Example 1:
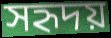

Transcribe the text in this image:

সহৃদয়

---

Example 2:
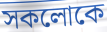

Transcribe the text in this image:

সকলোকে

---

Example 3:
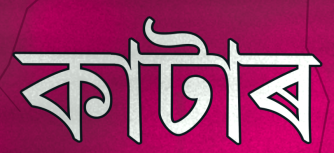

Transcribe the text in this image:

কাটাৰ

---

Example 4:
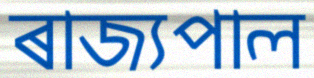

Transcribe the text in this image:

ৰাজ্যপাল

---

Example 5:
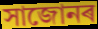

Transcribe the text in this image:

সাজোনৰ